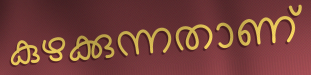
കുഴക്കുന്നതാണ്